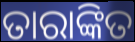
ତାରାଙ୍କିତ